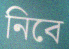
নিবে